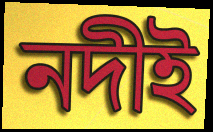
নদীই